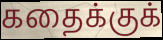
கதைக்குக்